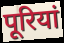
पूरियां